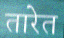
तारेत